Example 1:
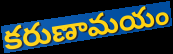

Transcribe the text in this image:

కరుణామయం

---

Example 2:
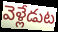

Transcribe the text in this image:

వెళ్లేడుట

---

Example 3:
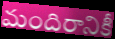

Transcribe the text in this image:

మందిరానికీ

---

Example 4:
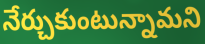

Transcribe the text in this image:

నేర్చుకుంటున్నామని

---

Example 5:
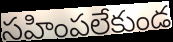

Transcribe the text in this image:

సహింపలేకుండ